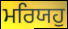
ਮਰਿਯਹੁ